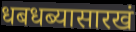
धबधब्यासारखं